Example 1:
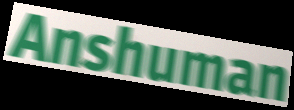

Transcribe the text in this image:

Anshuman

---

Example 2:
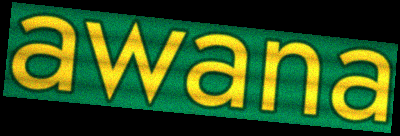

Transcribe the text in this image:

awana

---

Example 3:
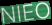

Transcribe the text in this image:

NIEO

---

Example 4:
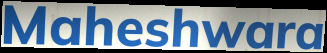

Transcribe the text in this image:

Maheshwara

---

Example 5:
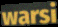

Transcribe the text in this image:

warsi